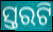
ସ୍ତରଟି